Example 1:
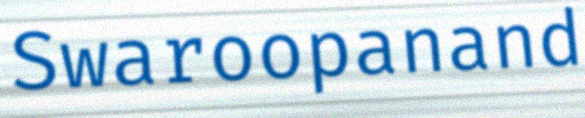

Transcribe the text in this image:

Swaroopanand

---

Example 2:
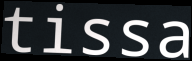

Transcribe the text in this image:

tissa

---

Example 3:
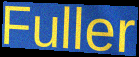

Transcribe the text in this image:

Fuller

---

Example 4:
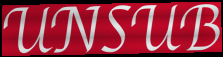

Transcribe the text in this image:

UNSUB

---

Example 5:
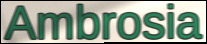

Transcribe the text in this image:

Ambrosia